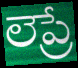
లెప్రే